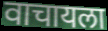
वाचायला